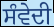
ਸੰਵੇਦੀ